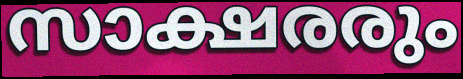
സാക്ഷരരും